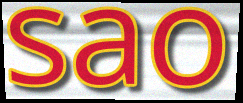
sao